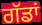
ਗੱਡਾਂ